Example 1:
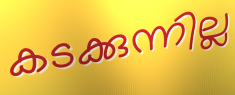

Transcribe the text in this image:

കടക്കുന്നില്ല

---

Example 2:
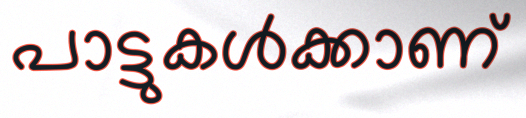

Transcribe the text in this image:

പാട്ടുകൾക്കാണ്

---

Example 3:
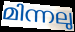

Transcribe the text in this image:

മിന്നലു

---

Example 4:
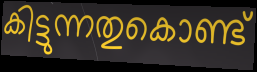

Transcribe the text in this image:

കിട്ടുന്നതുകൊണ്ട്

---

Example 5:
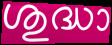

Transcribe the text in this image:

ശുദ്ധാ